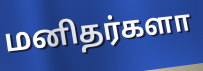
மனிதர்களா